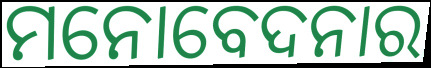
ମନୋବେଦନାର